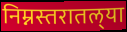
निम्नस्तरातल्या